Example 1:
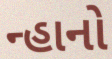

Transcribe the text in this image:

ન્હાનો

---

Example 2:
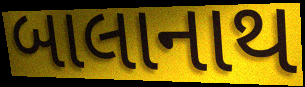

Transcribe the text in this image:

બાલાનાથ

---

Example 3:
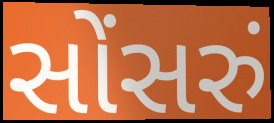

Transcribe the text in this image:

સોંસરું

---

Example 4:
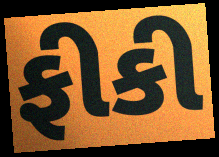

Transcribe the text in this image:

ફીકી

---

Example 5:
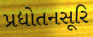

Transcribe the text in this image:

પ્રદ્યોતનસૂરિ